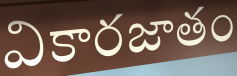
వికారజాతం